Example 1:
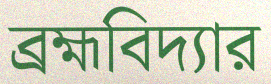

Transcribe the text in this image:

ব্রহ্মবিদ্যার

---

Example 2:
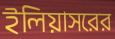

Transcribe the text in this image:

ইলিয়াসরের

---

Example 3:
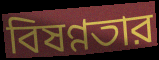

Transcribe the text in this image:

বিষণ্নতার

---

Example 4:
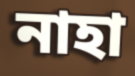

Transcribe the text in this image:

নাহা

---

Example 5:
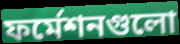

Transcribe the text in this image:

ফর্মেশনগুলো